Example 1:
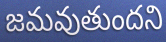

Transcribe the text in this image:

జమవుతుందని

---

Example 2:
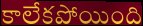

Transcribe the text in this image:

కాలేకపోయింది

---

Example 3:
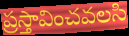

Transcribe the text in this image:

ప్రస్తావించవలసి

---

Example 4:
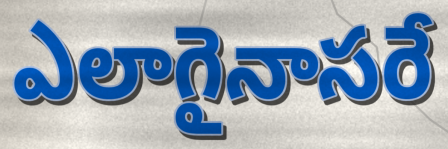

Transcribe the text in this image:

ఎలాగైనాసరే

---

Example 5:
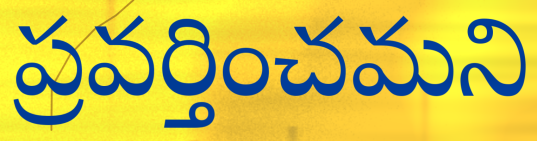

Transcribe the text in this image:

ప్రవర్తించమని